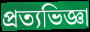
প্রত্যভিজ্ঞা